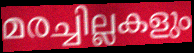
മരച്ചില്ലകളും